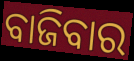
ବାଜିବାର